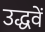
उद्धवें